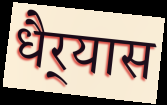
धैर्यास